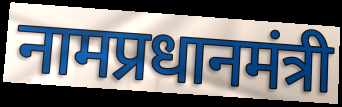
नामप्रधानमंत्री